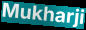
Mukharji